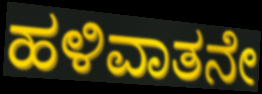
ಹಳಿವಾತನೇ